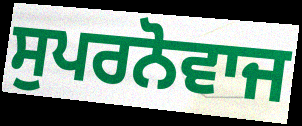
ਸੁਪਰਨੋਵਾਜ